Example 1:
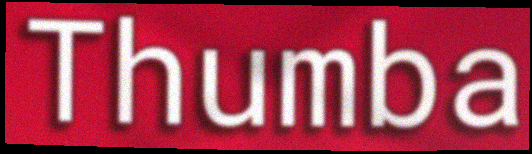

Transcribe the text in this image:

Thumba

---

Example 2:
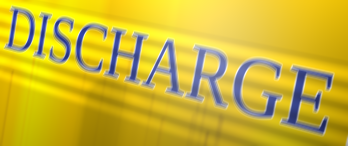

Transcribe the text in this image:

DISCHARGE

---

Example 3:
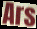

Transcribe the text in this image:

Ars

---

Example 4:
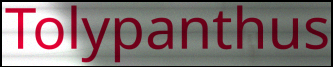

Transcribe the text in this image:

Tolypanthus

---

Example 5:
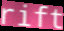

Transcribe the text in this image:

rift